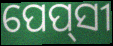
ପେପ୍‌ସୀ